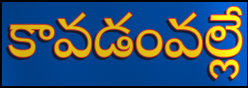
కావడంవల్లే